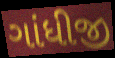
ગાંધીજી